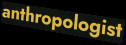
anthropologist